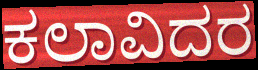
ಕಲಾವಿದರ